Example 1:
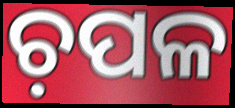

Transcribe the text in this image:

ଚ଼ପଳ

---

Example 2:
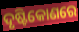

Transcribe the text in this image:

ଦୃଷ୍ଟିକୋଣରେ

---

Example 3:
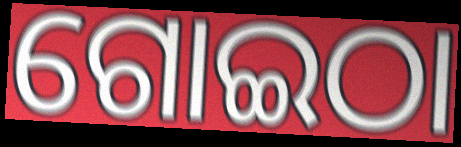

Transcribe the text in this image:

ଗୋଇଠା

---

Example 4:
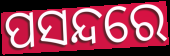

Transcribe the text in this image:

ପସନ୍ଦରେ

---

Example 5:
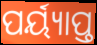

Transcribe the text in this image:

ପର୍ୟ୍ୟାପ୍ତ